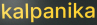
kalpanika